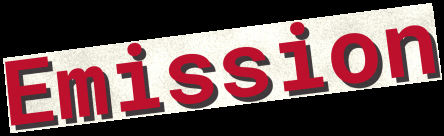
Emission